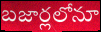
బజార్లలోనూ